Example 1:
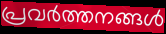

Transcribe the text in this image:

പ്രവർത്തനങ്ങൾ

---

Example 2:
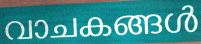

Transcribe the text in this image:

വാചകങ്ങൾ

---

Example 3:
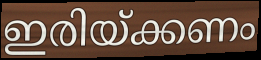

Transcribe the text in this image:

ഇരിയ്ക്കണം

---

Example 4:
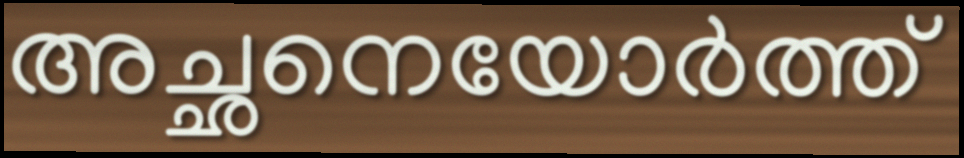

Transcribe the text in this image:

അച്ഛനെയോർത്ത്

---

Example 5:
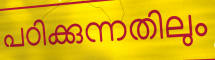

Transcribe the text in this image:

പഠിക്കുന്നതിലും